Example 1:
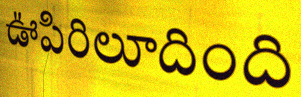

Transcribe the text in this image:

ఊపిరిలూదింది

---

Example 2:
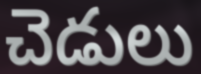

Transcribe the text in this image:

చెడులు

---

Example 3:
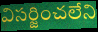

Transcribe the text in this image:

విసర్జించలేని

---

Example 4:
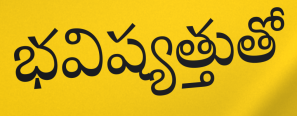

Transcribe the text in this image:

భవిష్యత్తుతో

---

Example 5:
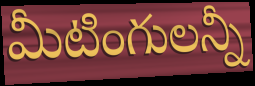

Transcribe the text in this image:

మీటింగులన్నీ